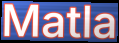
Matla